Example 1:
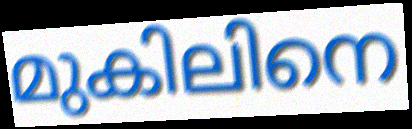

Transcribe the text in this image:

മുകിലിനെ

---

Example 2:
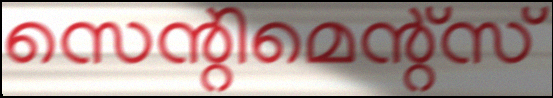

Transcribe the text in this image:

സെന്റിമെന്റ്സ്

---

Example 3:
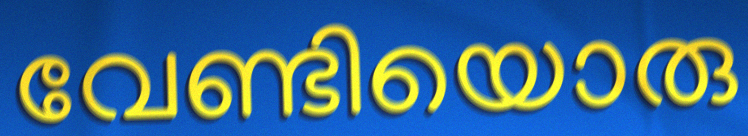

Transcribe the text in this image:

വേണ്ടിയൊരു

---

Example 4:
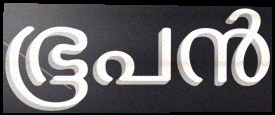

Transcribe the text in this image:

ഭൂപൻ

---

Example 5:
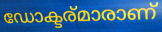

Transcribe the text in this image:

ഡോക്ടര്മാരാണ്